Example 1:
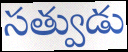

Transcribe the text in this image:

సత్వుడు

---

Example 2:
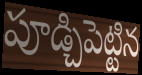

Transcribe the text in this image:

పూడ్చిపెట్టిన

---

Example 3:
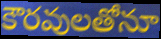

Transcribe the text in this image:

కౌరవులతోనూ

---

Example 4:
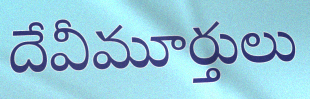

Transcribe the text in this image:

దేవీమూర్తులు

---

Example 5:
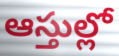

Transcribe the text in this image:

ఆస్తుల్లో